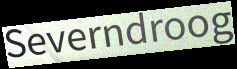
Severndroog